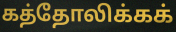
கத்தோலிக்கக்